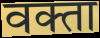
वक्ता